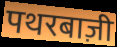
पथरबाज़ी